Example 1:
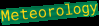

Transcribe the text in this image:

Meteorology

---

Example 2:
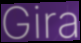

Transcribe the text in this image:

Gira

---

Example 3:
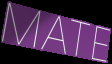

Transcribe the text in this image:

MATE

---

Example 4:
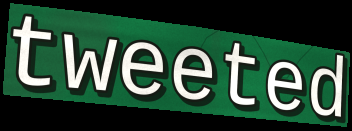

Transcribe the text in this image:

tweeted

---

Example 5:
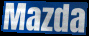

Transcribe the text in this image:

Mazda